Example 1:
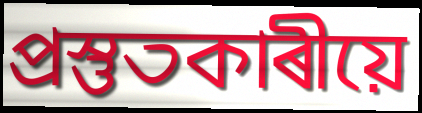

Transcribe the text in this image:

প্ৰস্তুতকাৰীয়ে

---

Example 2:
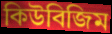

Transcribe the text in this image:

কিউবিজিম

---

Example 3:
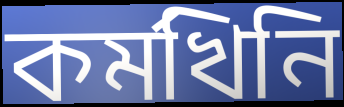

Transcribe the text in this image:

কৰ্মখিনি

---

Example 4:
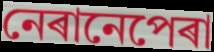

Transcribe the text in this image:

নেৰানেপেৰা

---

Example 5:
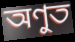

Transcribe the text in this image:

অণুত